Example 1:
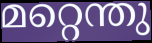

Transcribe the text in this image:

മറ്റെന്തു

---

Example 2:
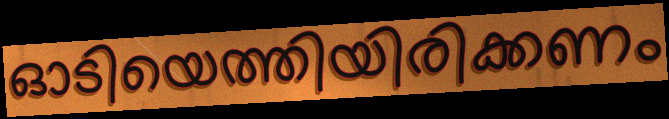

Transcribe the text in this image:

ഓടിയെത്തിയിരിക്കണം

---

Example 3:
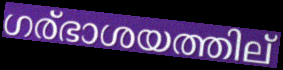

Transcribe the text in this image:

ഗര്ഭാശയത്തില്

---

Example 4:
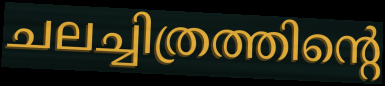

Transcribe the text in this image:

ചലച്ചിത്രത്തിന്റെ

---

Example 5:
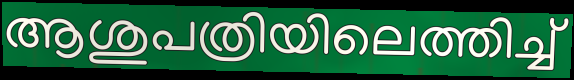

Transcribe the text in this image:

ആശുപത്രിയിലെത്തിച്ച്